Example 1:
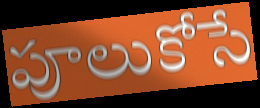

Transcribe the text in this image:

పూలుకోసే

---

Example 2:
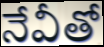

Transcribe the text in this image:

నేవీతో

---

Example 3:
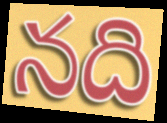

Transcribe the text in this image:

నది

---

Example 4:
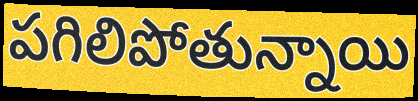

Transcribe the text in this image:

పగిలిపోతున్నాయి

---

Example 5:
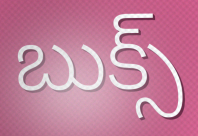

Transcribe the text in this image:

బుక్స్